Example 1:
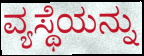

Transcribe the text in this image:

ವ್ಯಸ್ಥೆಯನ್ನು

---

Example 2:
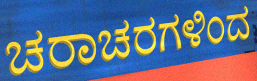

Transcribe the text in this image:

ಚರಾಚರಗಳಿಂದ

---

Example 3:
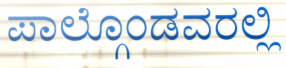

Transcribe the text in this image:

ಪಾಲ್ಗೊಂಡವರಲ್ಲಿ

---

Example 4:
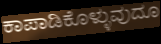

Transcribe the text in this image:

ಕಾಪಾಡಿಕೊಳ್ಳುವುದೂ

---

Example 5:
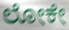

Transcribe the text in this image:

ಲೋಕೇ